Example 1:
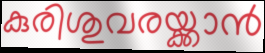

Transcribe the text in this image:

കുരിശുവരയ്ക്കാൻ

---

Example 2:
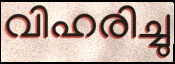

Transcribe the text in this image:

വിഹരിച്ചു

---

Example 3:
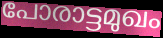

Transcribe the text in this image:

പോരാട്ടമുഖം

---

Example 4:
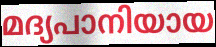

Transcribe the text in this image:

മദ്യപാനിയായ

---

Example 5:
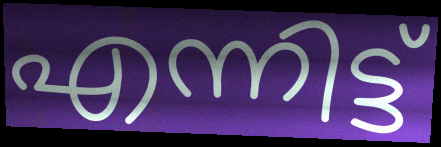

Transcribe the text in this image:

എന്നിട്ട്